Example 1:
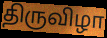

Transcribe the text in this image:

திருவிழா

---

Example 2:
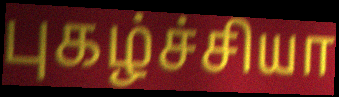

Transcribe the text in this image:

புகழ்ச்சியா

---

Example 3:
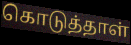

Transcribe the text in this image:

கொடுத்தாள்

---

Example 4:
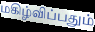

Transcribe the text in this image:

மகிழ்விப்பதும்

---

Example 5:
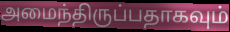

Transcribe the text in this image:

அமைந்திருப்பதாகவும்